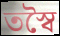
তস্বৈ